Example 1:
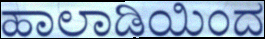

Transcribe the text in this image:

ಹಾಲಾಡಿಯಿಂದ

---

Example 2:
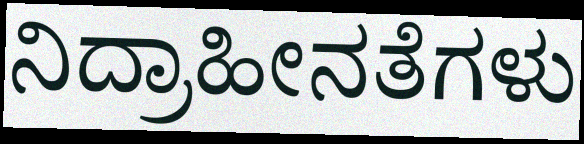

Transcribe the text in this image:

ನಿದ್ರಾಹೀನತೆಗಳು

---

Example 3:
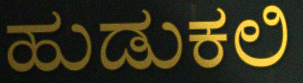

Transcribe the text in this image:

ಹುಡುಕಲಿ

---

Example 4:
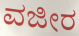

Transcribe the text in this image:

ವಜೀರ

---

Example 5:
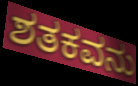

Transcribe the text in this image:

ಶತಕವನು